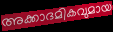
അക്കാദമികവുമായ